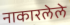
नाकारलेले